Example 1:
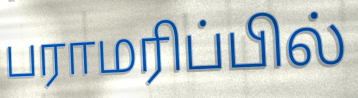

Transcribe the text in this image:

பராமரிப்பில்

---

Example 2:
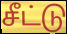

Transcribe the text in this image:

சீட்டு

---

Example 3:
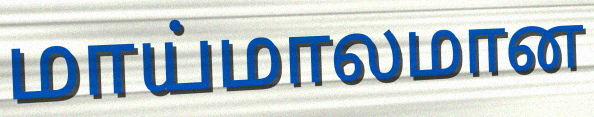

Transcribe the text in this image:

மாய்மாலமான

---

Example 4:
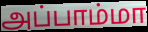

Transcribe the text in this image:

அப்பாம்மா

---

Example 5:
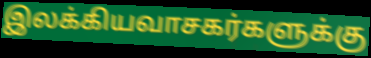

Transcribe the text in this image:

இலக்கியவாசகர்களுக்கு